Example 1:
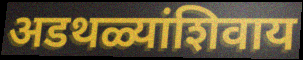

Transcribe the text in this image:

अडथळ्यांशिवाय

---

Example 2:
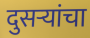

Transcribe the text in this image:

दुसऱ्यांचा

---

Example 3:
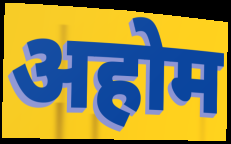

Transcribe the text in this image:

अहोम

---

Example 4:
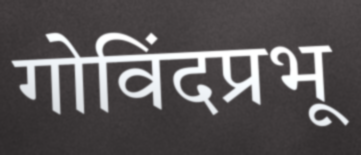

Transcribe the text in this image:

गोविंदप्रभू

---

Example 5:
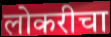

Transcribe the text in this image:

लोकरीचा